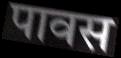
पावस